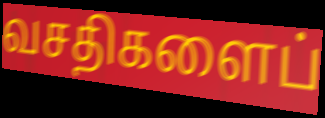
வசதிகளைப்